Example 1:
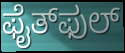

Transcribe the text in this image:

ಫೈತ್‌ಫುಲ್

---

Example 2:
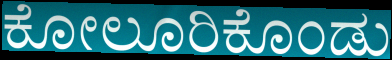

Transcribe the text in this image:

ಕೋಲೂರಿಕೊಂಡು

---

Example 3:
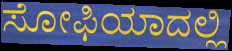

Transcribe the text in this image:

ಸೋಫಿಯಾದಲ್ಲಿ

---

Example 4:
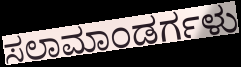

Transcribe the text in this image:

ಸಲಾಮಾಂಡರ್ಗಳು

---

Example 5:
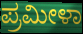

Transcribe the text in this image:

ಪ್ರಮೀಳಾ